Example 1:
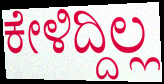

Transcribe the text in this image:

ಕೇಳಿದ್ದಿಲ್ಲ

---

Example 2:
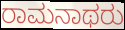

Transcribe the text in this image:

ರಾಮನಾಥರು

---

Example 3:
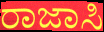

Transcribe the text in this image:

ರಾಜಾಸಿ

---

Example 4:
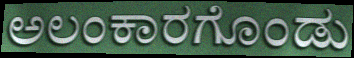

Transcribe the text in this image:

ಅಲಂಕಾರಗೊಂಡು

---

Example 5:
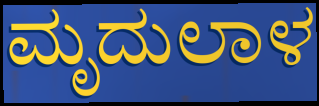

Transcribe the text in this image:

ಮೃದುಲಾಳ